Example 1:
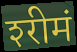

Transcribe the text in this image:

श्रीमं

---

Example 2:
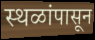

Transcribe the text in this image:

स्थळांपासून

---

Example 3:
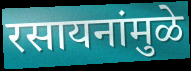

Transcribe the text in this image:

रसायनांमुळे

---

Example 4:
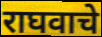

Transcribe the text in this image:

राघवाचे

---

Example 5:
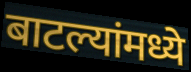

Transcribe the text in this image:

बाटल्यांमध्ये